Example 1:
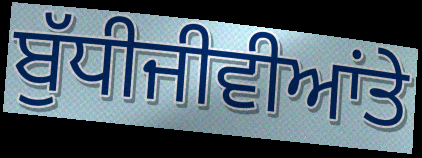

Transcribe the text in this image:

ਬੁੱਧੀਜੀਵੀਆਂਤੇ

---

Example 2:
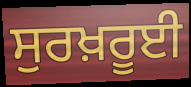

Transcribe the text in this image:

ਸੁਰਖ਼ਰੂਈ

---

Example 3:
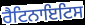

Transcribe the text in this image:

ਰੈਟਿਨਾਇਟਿਸ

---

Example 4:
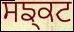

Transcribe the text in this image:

ਸਙ੍ਕਟ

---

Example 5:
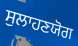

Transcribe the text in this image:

ਸੁਲਾਹਣਯੋਗ